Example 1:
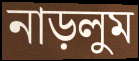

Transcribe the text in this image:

নাড়লুম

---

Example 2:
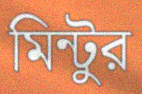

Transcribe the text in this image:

মিন্টুর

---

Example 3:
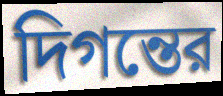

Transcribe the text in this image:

দিগন্তের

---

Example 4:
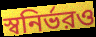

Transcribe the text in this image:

স্বনির্ভরও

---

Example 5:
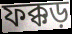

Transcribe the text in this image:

ফক্কড়